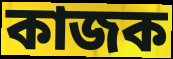
কাজক